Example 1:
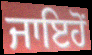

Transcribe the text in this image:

ਜਾਇਹੋਂ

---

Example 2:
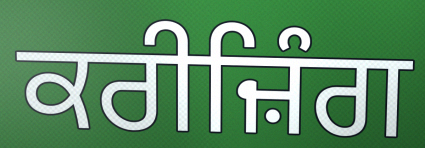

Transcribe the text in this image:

ਕਰੀਜ਼ਿੰਗ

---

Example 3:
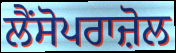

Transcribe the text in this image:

ਲੈਂਸੋਪਰਾਜ਼ੋਲ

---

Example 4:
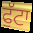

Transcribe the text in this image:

ਫੁੱਟਾ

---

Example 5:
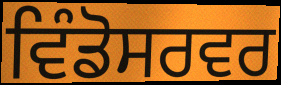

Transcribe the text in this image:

ਵਿੰਡੋਸਰਵਰ